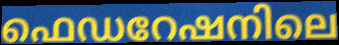
ഫെഡറേഷനിലെ